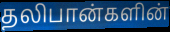
தலிபான்களின்